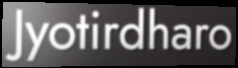
Jyotirdharo